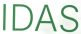
IDAS